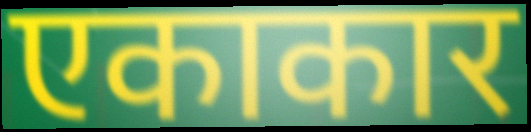
एकाकार